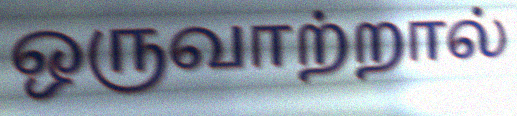
ஒருவாற்றால்